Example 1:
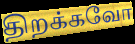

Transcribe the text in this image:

திறக்கவோ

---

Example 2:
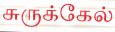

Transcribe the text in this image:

சுருக்கேல்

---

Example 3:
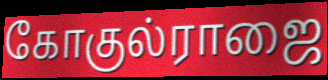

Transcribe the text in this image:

கோகுல்ராஜை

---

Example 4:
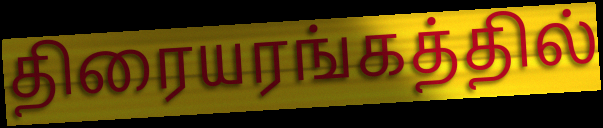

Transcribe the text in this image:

திரையரங்கத்தில்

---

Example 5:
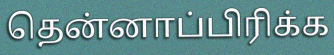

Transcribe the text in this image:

தென்னாப்பிரிக்க